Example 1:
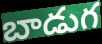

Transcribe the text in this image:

బాడుగ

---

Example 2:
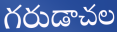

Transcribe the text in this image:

గరుడాచల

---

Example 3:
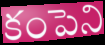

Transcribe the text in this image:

కంపెని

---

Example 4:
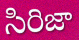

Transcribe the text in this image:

సిరిజా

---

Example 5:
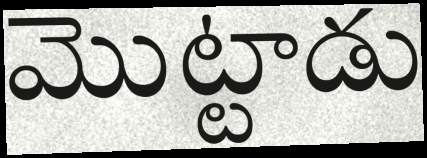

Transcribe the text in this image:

మొట్టాడు